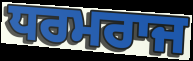
ਧਰਮਰਾਜ